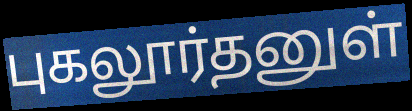
புகலூர்தனுள்